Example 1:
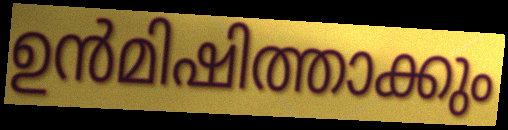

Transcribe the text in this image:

ഉൻമിഷിത്താക്കും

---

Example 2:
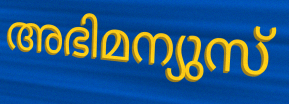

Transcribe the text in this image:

അഭിമന്യുസ്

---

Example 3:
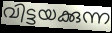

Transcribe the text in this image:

വിട്ടയക്കുന്ന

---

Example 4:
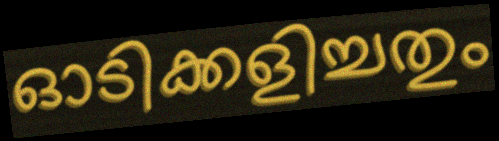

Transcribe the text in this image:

ഓടിക്കളിച്ചതും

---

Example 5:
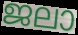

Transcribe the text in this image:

ജലാ